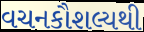
વચનકૌશલ્યથી